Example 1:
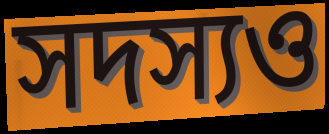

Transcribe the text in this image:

সদস্যও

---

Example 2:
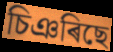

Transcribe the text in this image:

চিঞৰিছে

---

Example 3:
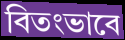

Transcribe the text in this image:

বিতংভাবে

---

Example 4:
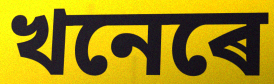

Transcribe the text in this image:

খনেৰে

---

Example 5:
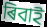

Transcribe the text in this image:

ৰিবাই